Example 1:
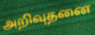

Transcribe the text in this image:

அறிவுதனை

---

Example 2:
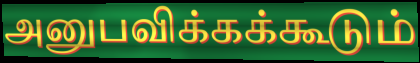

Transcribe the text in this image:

அனுபவிக்கக்கூடும்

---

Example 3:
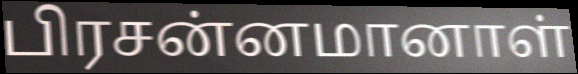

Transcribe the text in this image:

பிரசன்னமானாள்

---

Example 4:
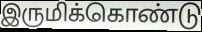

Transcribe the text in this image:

இருமிக்கொண்டு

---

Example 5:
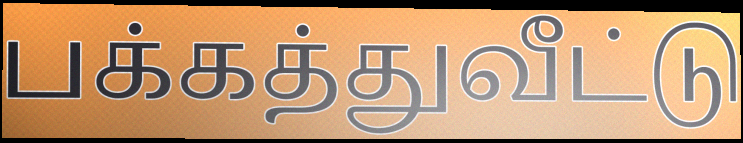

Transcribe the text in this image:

பக்கத்துவீட்டு